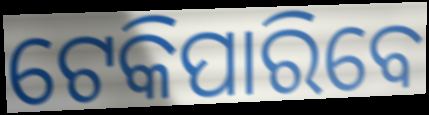
ଟେକିପାରିବେ